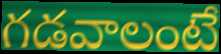
గడవాలంటే